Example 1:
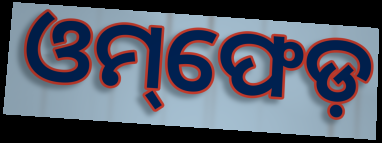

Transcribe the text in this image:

ଓମ୍‌ଫେଡ଼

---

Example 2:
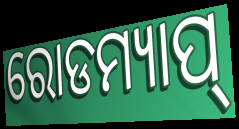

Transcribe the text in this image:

ରୋଡମ୍ୟାପ୍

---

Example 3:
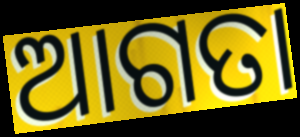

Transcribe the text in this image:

ଆଗତା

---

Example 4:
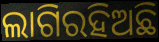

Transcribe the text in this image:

ଲାଗିରହିଅଛି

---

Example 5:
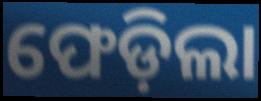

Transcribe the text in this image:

ଫେଡ଼ିଲା